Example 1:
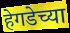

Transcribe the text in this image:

हेगडेच्या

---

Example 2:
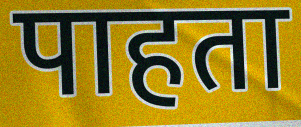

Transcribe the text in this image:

पाहता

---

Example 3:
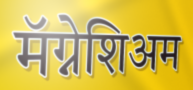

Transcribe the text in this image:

मॅग्नेशिअम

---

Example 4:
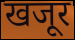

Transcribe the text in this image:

खजूर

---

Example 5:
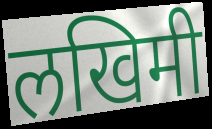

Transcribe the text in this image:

लखिमी